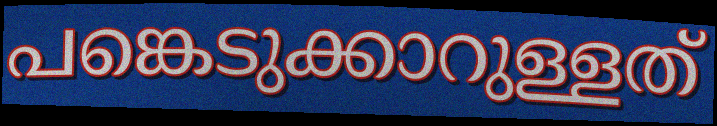
പങ്കെടുക്കാറുള്ളത്